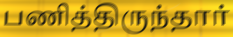
பணித்திருந்தார்